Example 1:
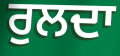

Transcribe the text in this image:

ਰੁਲਦਾ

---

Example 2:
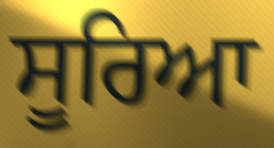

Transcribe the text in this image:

ਸੂਰਿਆ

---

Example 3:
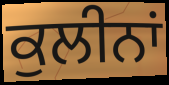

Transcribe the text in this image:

ਕੁਲੀਨਾਂ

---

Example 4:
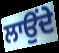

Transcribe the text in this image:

ਲਾਉਂਦੇ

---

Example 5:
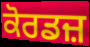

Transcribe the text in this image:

ਕੋਰਡਜ਼